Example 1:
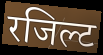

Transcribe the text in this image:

रजिल्ट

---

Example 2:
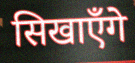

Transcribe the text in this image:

सिखाएँगे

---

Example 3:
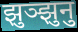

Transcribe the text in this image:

झुञ्झुनु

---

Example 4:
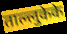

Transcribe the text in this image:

ताल्लुकेके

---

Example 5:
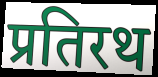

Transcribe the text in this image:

प्रतिरथ